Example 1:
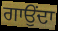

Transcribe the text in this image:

ਗਾਉਂਦਾ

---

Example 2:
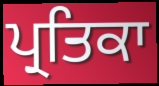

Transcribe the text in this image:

ਪ੍ਰਤਿਕਾ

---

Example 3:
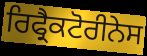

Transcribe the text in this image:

ਰਿਫ੍ਰੈਕਟੋਰੀਨੇਸ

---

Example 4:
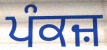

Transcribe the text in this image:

ਪੰਕਜ਼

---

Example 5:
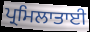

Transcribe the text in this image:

ਪ੍ਰਮਿਲਾਤਾਈ